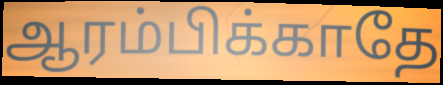
ஆரம்பிக்காதே